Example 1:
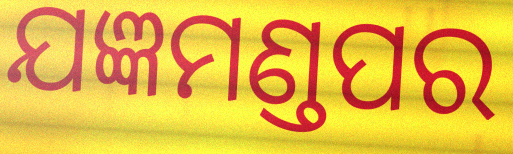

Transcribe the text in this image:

ଯଜ୍ଞମଣ୍ଡପର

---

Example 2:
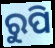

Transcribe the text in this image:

ରୁପି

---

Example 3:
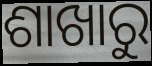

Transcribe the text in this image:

ଶାଖାରୁ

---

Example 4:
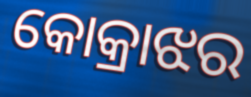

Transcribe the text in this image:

କୋକ୍ରାଝର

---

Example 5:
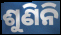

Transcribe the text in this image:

ଶୁଣିନି